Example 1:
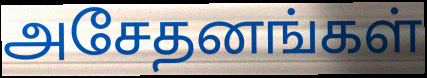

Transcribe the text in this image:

அசேதனங்கள்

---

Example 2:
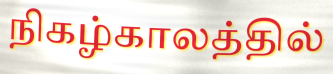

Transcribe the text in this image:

நிகழ்காலத்தில்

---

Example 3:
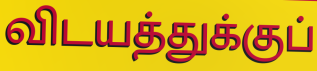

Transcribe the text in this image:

விடயத்துக்குப்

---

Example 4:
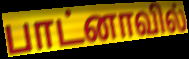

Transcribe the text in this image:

பாட்னாவில்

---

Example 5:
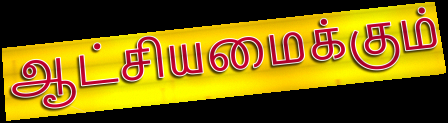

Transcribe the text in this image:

ஆட்சியமைக்கும்